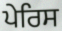
ਪੇਰਿਸ